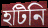
হটিনি